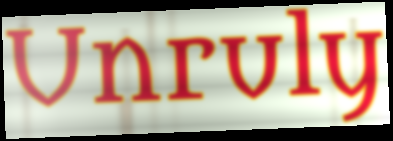
Unruly